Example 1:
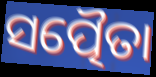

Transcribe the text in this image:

ସତ୍ପୈତା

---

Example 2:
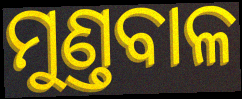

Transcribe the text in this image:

ମୁଣ୍ତବାଳ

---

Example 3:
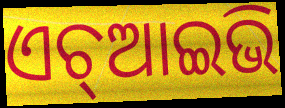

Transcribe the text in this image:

ଏଚ୍ଆଇଭି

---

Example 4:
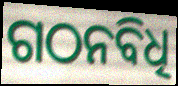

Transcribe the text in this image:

ଗଠନବିଧି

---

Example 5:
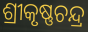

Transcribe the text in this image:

ଶ୍ରୀକୃଷ୍ଣଚନ୍ଦ୍ର